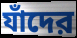
যাঁদের